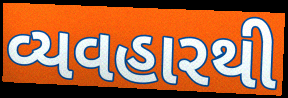
વ્યવહારથી